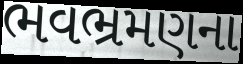
ભવભ્રમણના